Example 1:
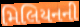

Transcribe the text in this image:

મિલિયનની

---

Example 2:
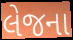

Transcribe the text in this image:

લેજના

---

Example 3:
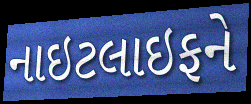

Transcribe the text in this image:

નાઇટલાઇફને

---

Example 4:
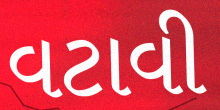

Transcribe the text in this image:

વટાવી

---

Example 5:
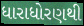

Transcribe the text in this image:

ધારાધોરણથી